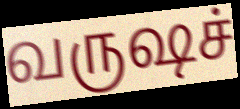
வருஷச்